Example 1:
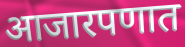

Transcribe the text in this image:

आजारपणात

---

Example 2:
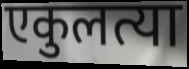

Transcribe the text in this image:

एकुलत्या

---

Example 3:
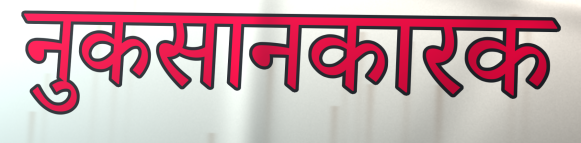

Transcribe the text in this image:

नुकसानकारक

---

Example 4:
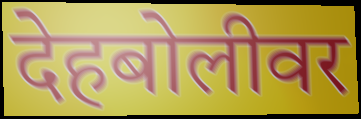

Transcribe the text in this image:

देहबोलीवर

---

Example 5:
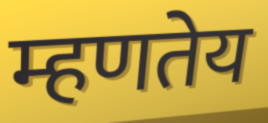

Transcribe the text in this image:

म्हणतेय